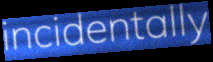
incidentally